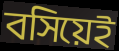
বসিয়েই